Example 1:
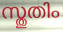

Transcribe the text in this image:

സ്തുതിം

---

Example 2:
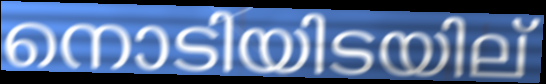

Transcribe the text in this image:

നൊടിയിടയില്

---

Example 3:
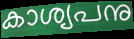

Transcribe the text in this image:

കാശ്യപനു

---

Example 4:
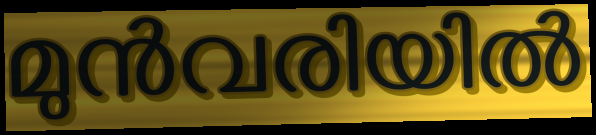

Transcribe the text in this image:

മുൻവരിയിൽ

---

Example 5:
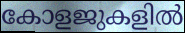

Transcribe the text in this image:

കോളജുകളിൽ